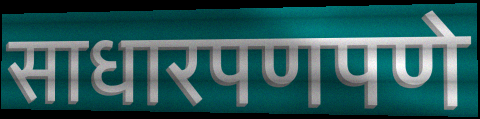
साधारपणपणे